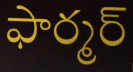
ఫార్మర్